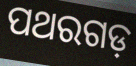
ପଥରଗଡ଼